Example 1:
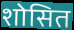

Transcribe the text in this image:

शोसित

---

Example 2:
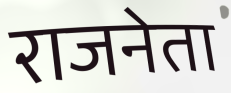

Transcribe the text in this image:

राजनेता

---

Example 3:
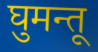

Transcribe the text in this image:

घुमन्तू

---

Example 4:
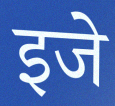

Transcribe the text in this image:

इजे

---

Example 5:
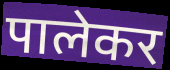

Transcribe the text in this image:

पालेकर